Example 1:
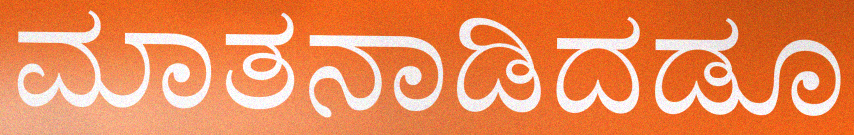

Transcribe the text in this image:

ಮಾತನಾಡಿದಡೂ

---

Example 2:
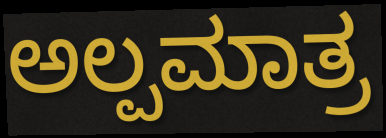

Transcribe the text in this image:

ಅಲ್ಪಮಾತ್ರ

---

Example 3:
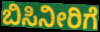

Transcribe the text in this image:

ಬಿಸಿನೀರಿಗೆ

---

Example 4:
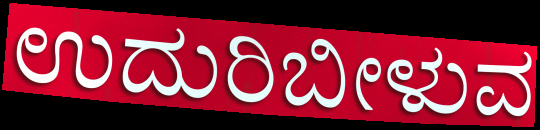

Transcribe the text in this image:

ಉದುರಿಬೀಳುವ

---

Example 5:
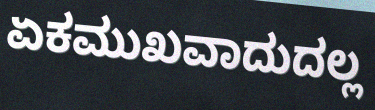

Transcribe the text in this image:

ಏಕಮುಖವಾದುದಲ್ಲ